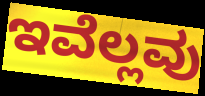
ಇವೆಲ್ಲವು